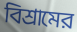
বিশ্রামের